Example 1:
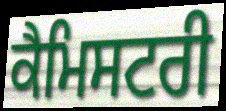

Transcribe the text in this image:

ਕੈਮਿਸਟਰੀ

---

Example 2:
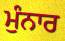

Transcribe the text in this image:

ਮੁੰਨਾਰ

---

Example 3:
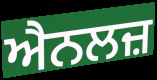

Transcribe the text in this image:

ਐਨਲਜ਼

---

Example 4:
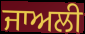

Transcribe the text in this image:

ਜਾਅਲੀ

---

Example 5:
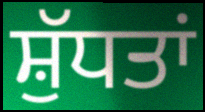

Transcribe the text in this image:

ਸ਼ੁੱਧਤਾਂ